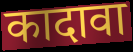
कादावा